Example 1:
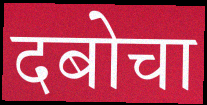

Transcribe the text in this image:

दबोचा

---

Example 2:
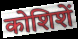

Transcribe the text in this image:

कोशिशें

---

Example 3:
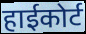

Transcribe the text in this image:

हाईकोर्ट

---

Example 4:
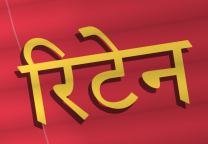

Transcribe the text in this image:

रिटेन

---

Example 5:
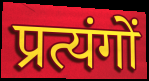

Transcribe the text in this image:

प्रत्यंगों